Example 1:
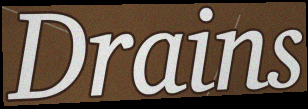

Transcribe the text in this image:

Drains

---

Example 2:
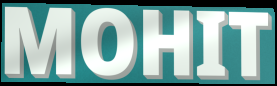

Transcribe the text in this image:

MOHIT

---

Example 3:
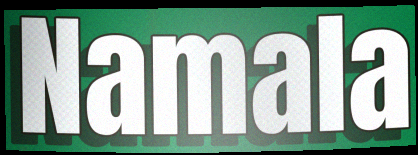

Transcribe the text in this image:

Namala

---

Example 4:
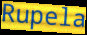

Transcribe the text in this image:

Rupela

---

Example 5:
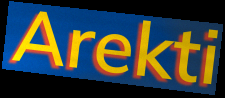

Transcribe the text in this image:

Arekti